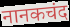
नानकचंद